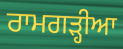
ਰਾਮਗਡ਼੍ਹੀਆ